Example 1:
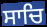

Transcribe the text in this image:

ਸਾਚਿ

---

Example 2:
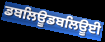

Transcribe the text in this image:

ਡਬਲਿਊਡਬਲਿਊਈ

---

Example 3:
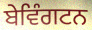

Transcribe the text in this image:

ਬੇਵਿੰਗਟਨ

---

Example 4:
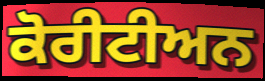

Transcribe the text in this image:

ਕੋਰੀਟੀਅਨ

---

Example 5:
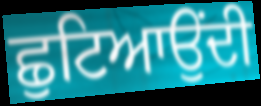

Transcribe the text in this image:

ਛੁਟਿਆਉਂਦੀ